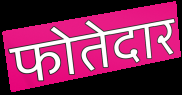
फोतेदार